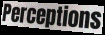
Perceptions